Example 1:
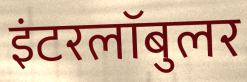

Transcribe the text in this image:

इंटरलॉबुलर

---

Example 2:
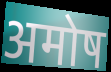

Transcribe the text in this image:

अमोष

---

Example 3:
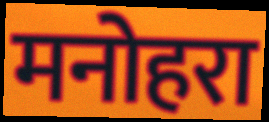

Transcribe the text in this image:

मनोहरा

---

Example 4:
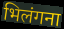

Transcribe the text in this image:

भिलंगना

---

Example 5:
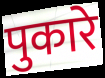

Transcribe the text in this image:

पुकारे